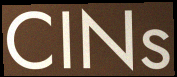
CINs